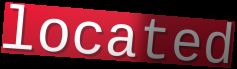
located